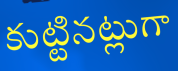
కుట్టినట్లుగా